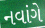
નવાંગે